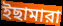
ইছামারা